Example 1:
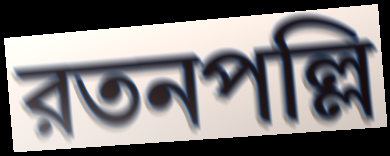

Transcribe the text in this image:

রতনপল্লি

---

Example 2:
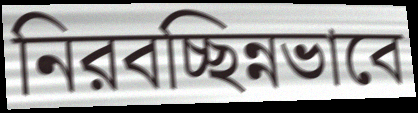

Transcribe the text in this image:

নিরবচ্ছিন্নভাবে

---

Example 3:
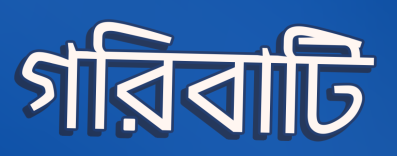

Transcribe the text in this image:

গরিবাটি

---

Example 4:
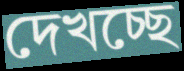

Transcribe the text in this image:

দেখচ্ছে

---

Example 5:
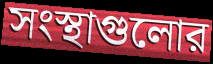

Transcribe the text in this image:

সংস্থাগুলোর